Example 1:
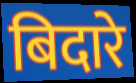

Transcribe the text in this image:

बिदारे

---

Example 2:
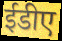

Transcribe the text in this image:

ईडीए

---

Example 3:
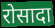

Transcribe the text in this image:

रोसादा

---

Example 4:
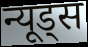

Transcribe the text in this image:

न्यूड्स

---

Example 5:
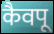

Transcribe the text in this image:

कैवपू